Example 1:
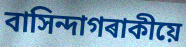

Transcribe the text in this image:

বাসিন্দাগৰাকীয়ে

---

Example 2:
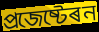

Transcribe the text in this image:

প্ৰজেষ্টেৰন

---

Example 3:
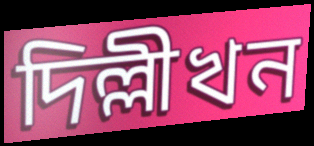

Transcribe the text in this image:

দিল্লীখন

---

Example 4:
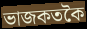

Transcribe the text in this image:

ভাজকতকৈ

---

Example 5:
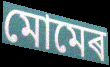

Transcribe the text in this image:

মোমেৰ